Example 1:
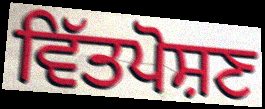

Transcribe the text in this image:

ਵਿੱਤਪੋਸ਼ਣ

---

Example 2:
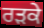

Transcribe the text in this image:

ਰੜਕੇ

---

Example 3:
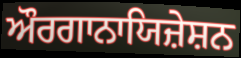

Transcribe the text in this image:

ਔਰਗਾਨਾਯਿਜ਼ੇਸ਼ਨ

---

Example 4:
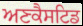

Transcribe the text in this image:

ਅਣਕੈਸਟਿਡ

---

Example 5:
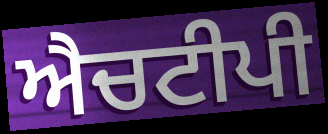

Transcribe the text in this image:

ਐਚਟੀਪੀ